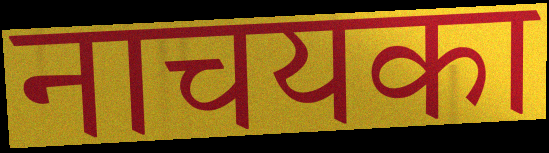
नाचयका